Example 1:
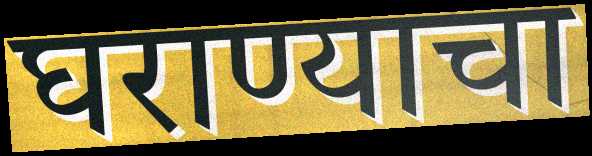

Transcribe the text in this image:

घराण्याचा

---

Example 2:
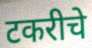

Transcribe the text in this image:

टकरीचे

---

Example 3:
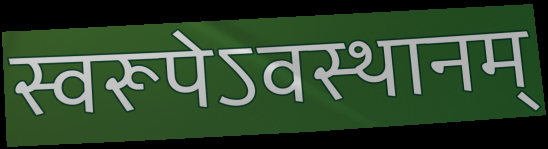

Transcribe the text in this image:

स्वरूपेऽवस्थानम्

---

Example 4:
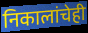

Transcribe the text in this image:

निकालांचेही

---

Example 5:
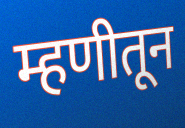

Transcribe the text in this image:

म्हणीतून